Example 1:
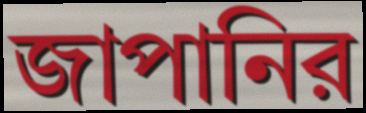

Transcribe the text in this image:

জাপানির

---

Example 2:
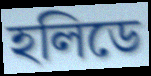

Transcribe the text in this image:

হলিডে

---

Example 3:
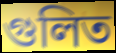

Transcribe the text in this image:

গুলিত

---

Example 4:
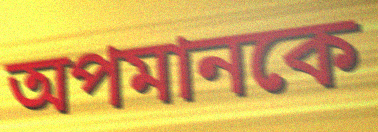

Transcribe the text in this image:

অপমানকে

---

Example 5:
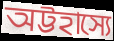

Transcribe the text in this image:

অট্টহাস্যে